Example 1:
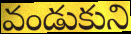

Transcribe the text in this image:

వండుకుని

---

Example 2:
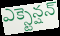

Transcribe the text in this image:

ఎక్స్టెన్షన్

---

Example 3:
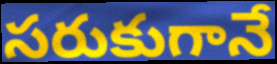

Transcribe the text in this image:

సరుకుగానే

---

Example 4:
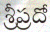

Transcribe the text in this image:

శ్రీప్రదో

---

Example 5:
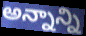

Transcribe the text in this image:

అన్నాన్ని